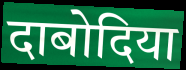
दाबोदिया